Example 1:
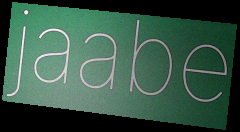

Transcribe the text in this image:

jaabe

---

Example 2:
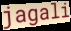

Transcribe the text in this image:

jagali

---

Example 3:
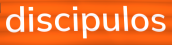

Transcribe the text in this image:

discipulos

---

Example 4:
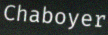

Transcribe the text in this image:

Chaboyer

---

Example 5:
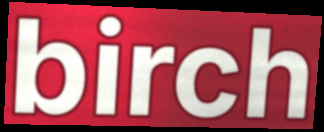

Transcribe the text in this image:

birch